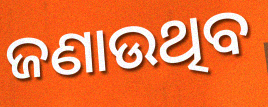
ଜଣାଉଥିବ